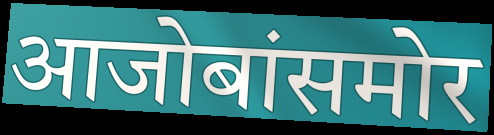
आजोबांसमोर